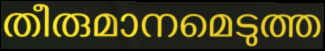
തീരുമാനമെടുത്ത